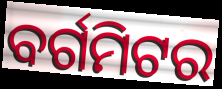
ବର୍ଗମିଟର